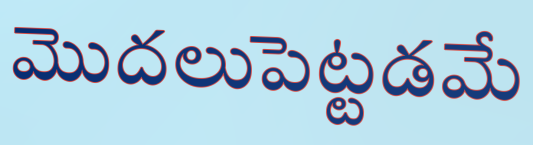
మొదలుపెట్టడమే